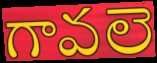
గావలె